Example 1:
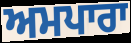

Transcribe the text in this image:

ਅਮਪਾਰਾ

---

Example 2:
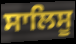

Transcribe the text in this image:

ਸਾਲਿਸੂ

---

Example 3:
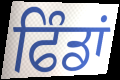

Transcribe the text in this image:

ਫਿੰਡਾਂ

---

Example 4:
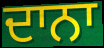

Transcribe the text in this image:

ਦਾਨਾ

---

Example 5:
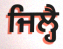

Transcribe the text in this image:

ਜਿਲ੍ਹੈ